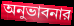
অনুভাবনার